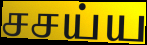
சசய்ய